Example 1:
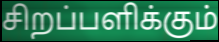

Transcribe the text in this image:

சிறப்பளிக்கும்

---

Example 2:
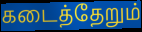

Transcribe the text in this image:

கடைத்தேறும்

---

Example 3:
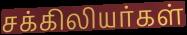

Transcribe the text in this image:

சக்கிலியர்கள்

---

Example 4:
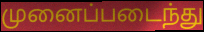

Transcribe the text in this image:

முனைப்படைந்து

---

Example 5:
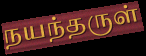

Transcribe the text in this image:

நயந்தருள்